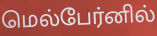
மெல்பேர்னில்